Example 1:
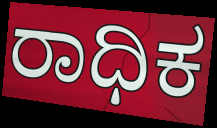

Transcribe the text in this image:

ರಾಧಿಕ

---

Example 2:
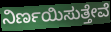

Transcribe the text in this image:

ನಿರ್ಣಯಿಸುತ್ತೇವೆ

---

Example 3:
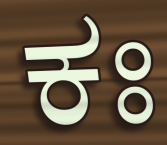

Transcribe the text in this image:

ಕಃ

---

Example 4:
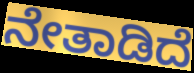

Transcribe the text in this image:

ನೇತಾಡಿದೆ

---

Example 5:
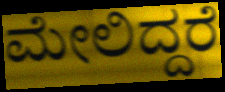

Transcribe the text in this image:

ಮೇಲಿದ್ದರೆ